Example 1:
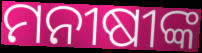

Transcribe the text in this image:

ମନୀଷୀଙ୍କ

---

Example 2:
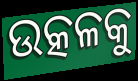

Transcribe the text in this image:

ଉତ୍କଳକୁ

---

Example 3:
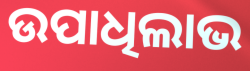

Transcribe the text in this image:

ଉପାଧିଲାଭ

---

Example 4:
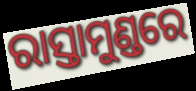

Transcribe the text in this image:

ରାସ୍ତାମୁଣ୍ଡରେ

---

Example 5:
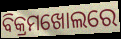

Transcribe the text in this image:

ବିକ୍ରମଖୋଲରେ